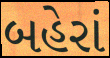
બહેરાં